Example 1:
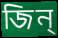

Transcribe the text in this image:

জিন্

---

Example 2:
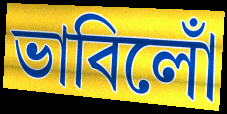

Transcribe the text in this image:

ভাবিলোঁ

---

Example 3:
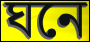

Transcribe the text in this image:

ঘনে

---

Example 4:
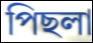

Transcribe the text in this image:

পিছলা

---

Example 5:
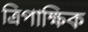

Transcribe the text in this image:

ত্ৰিপাক্ষিক